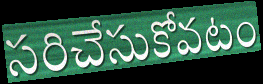
సరిచేసుకోవటం